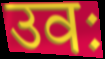
उवः